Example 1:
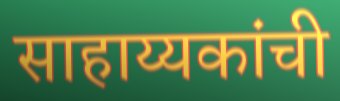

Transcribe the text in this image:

साहाय्यकांची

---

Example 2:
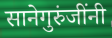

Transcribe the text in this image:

सानेगुरुंजींनी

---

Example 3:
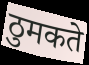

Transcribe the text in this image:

ठुमकते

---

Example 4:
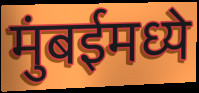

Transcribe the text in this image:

मुंबईमध्ये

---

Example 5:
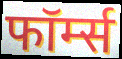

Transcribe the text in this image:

फॉर्म्स